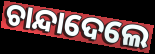
ଚାନ୍ଦାଦେଲେ